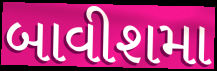
બાવીશમા